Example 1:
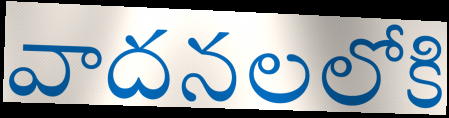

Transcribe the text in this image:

వాదనలలోకి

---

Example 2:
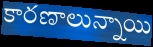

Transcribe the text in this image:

కారణాలున్నాయి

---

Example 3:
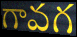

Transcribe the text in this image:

గావగ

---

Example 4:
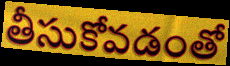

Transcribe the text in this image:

తీసుకోవడంతో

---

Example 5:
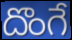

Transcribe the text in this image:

దొంగే